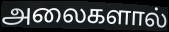
அலைகளால்